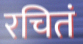
रचितं